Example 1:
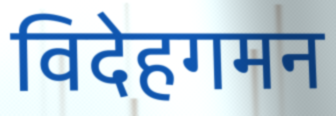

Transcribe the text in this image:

विदेहगमन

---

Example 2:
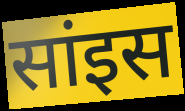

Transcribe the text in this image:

सांइस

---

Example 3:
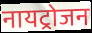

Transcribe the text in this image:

नायट्रोजन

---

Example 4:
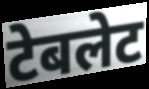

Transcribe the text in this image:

टेबलेट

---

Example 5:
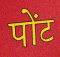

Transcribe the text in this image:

पोंट